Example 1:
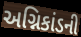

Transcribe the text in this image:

અગ્નિકાંડની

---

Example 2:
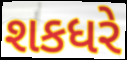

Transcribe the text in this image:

શકધરે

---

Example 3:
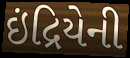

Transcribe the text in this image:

ઇંદ્રિયેની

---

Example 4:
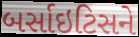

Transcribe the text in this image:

બર્સાઇટિસને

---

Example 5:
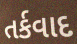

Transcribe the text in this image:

તર્કવાદ